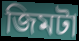
জিমটা